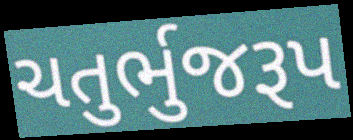
ચતુર્ભુજરૂપ